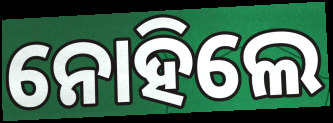
ନୋହିଲେ